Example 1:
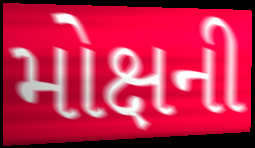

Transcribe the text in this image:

મોક્ષની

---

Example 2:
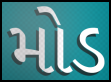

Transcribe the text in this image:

મોડ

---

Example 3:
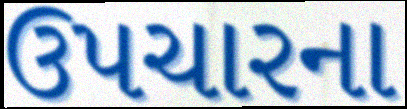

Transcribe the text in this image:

ઉપચારના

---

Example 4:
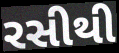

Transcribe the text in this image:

રસીથી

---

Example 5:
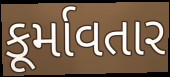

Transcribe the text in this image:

કૂર્માવતાર